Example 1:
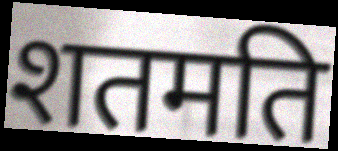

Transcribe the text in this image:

शतमति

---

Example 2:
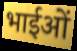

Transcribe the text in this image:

भाईओं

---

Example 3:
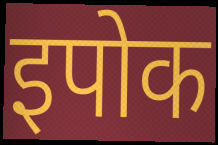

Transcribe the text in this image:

इपोक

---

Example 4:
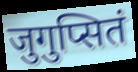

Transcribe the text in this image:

जुगुप्सितं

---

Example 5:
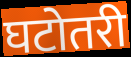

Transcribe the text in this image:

घटोतरी